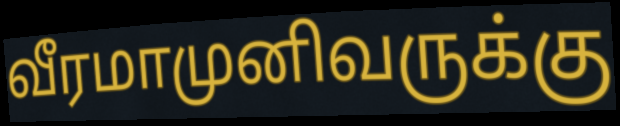
வீரமாமுனிவருக்கு